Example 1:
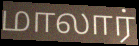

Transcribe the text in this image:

மாலார்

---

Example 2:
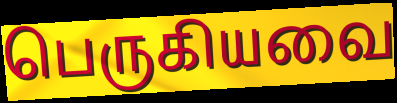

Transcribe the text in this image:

பெருகியவை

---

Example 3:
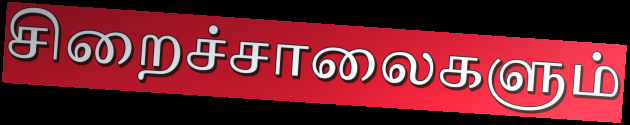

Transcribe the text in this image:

சிறைச்சாலைகளும்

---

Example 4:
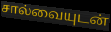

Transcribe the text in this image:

சால்வையுடன்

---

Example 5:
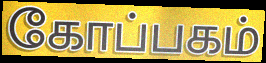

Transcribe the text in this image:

கோப்பகம்